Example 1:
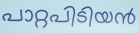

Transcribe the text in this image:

പാറ്റപിടിയൻ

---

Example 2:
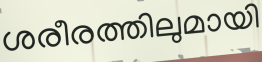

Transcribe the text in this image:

ശരീരത്തിലുമായി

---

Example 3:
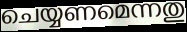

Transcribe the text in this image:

ചെയ്യണമെന്നതു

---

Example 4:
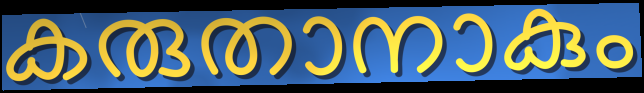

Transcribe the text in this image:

കരുതാനാകും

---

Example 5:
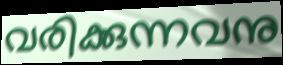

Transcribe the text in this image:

വരിക്കുന്നവനു